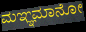
ಮಞ್ಞಮಾನೋ